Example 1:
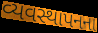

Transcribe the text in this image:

વ્યવસ્થાપનના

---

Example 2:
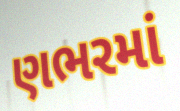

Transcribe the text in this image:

ણભરમાં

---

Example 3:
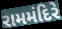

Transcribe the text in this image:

રામમંદિરે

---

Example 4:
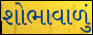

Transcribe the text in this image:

શોભાવાળું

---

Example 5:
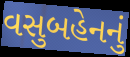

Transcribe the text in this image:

વસુબહેનનું